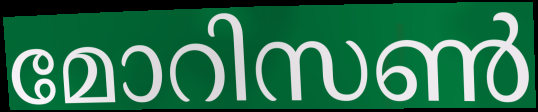
മോറിസൺ